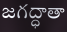
జగద్ధాతా